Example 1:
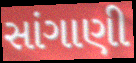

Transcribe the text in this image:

સાંગાણી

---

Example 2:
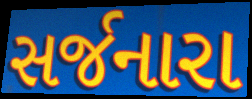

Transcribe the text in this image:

સર્જનારા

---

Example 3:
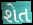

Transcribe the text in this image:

શેત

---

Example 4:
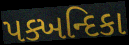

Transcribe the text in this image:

પક્ખન્દિકા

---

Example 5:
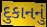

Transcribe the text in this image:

દુકાનનું